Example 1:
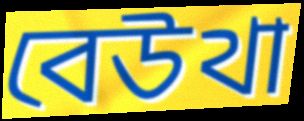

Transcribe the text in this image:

বেউথা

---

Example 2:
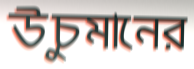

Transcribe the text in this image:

উচুমানের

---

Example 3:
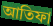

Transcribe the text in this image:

আতিফা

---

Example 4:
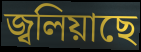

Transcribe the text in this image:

জ্বলিয়াছে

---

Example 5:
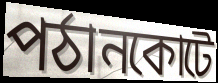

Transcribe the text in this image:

পঠানকোটে